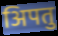
अिपतु